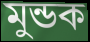
মুন্ডক